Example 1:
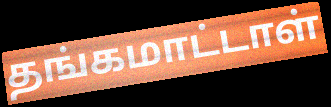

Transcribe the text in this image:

தங்கமாட்டாள்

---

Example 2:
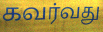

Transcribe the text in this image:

கவர்வது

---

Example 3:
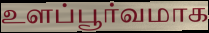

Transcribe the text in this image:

உளப்பூர்வமாக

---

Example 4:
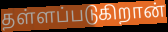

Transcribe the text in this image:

தள்ளப்படுகிறான்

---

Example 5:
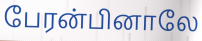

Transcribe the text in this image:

பேரன்பினாலே